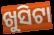
ଖୁସିଟା